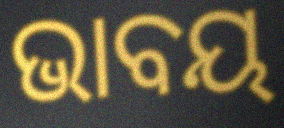
ଭାବୟ